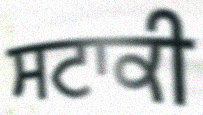
ਸਟਾਕੀ